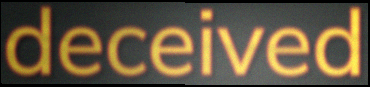
deceived